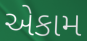
એકામ